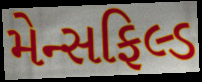
મેન્સફિલ્ડ